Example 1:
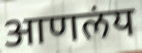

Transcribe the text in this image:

आणलंय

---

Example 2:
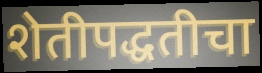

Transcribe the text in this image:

शेतीपद्धतीचा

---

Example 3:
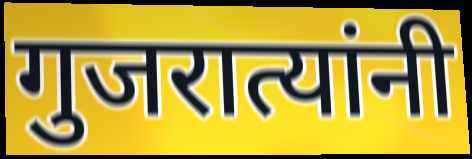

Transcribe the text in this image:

गुजरात्यांनी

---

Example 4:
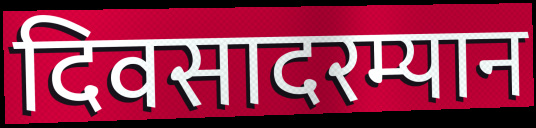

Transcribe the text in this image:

दिवसादरम्यान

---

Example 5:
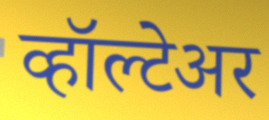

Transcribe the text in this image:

व्हॉल्टेअर